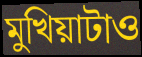
মুখিয়াটাও